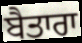
ਬੈਤਾਰਾ